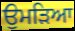
ਉਮੜਿਆ